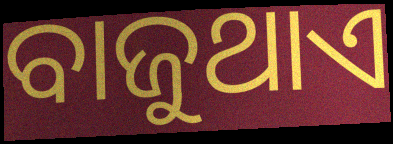
ବାଜୁଥାଏ